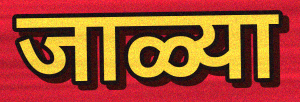
जाळ्या